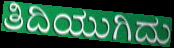
ತಿದಿಯುಗಿದು